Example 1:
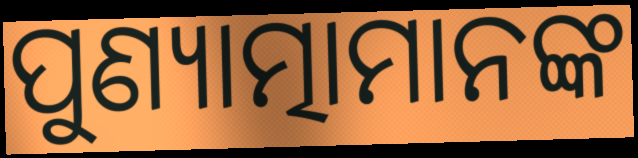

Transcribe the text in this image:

ପୁଣ୍ୟାତ୍ମାମାନଙ୍କ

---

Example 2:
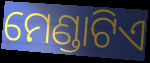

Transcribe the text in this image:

ମେଣ୍ଡାଟିଏ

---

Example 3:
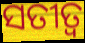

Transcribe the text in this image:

ସତୀତ୍ଵ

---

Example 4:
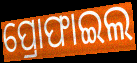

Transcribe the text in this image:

ପ୍ରୋଫାଇଲ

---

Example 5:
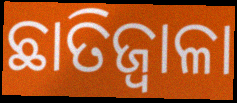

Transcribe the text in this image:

ଛାତିଜ୍ୱାଳା